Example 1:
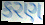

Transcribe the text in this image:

કરણ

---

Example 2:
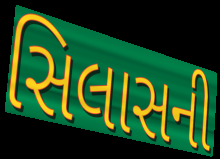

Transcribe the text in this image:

સિલાસની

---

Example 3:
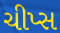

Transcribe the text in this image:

ચીપ્સ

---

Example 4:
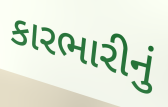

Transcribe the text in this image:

કારભારીનું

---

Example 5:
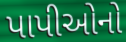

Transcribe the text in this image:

પાપીઓનો